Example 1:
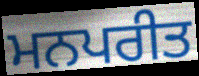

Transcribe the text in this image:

ਮਨਪਰੀਤ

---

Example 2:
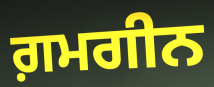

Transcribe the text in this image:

ਗ਼ਮਗੀਨ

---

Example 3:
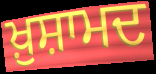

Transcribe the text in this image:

ਖ਼ੁਸ਼ਾਮਦ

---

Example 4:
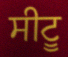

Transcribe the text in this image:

ਸੀਟੂ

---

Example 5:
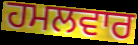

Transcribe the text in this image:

ਹਮਲਵਾਰ